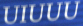
UIUUU